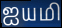
ஐயமி